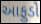
આફુડો